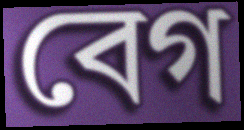
বেগ